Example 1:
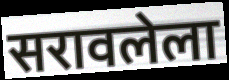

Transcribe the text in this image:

सरावलेला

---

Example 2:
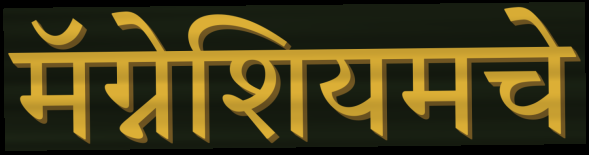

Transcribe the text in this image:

मॅग्नेशियमचे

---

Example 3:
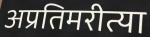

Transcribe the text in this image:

अप्रतिमरीत्या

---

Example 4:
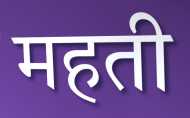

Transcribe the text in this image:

महती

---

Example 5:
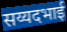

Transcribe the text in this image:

सय्यदभाई